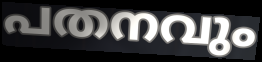
പതനവും